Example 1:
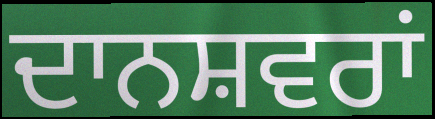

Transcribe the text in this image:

ਦਾਨਸ਼ਵਰਾਂ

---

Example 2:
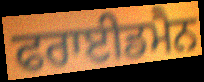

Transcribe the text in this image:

ਫਰਾਈਡਮੈਨ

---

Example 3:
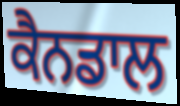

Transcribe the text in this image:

ਕੈਨਡਾਲ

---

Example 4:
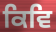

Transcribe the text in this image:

ਕਿਵਿ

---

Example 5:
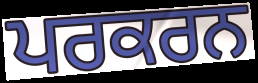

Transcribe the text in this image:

ਪਰਕਰਨ